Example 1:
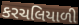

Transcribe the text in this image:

કરચલિયાળી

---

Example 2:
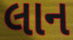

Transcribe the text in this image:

લાન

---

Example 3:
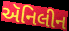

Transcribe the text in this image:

ઍનિલીન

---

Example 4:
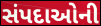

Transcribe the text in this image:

સંપદાઓની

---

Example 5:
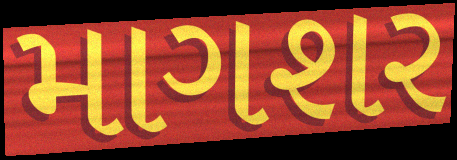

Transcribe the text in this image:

માગશર